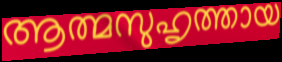
ആത്മസുഹൃത്തായ